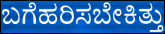
ಬಗೆಹರಿಸಬೇಕಿತ್ತು